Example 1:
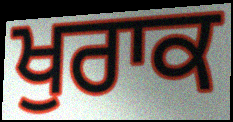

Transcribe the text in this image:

ਖੁਰਾਕ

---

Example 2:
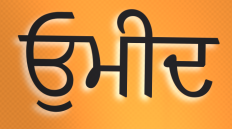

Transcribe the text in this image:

ਓੁਮੀਦ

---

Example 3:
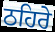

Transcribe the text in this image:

ਠਹਿਰੇ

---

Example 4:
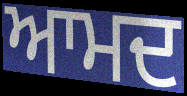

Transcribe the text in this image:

ਆਮਦ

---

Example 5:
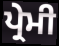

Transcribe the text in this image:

ਪ੍ਰੇਮੀ